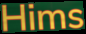
Hims